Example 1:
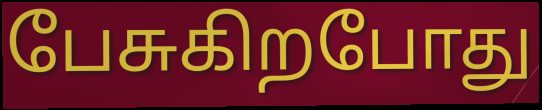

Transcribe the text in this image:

பேசுகிறபோது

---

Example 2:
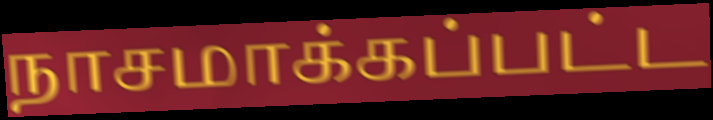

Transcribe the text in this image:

நாசமாக்கப்பட்ட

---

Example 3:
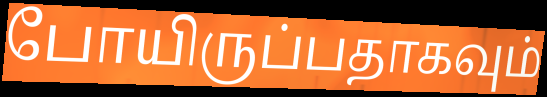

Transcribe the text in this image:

போயிருப்பதாகவும்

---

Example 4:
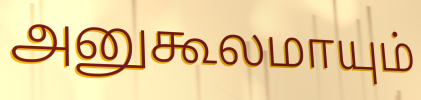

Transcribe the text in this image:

அனுகூலமாயும்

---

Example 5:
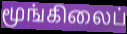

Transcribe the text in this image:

மூங்கிலைப்